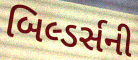
બિલ્ડર્સની